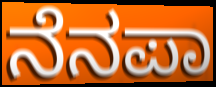
ನೆನಪಾ